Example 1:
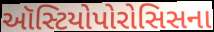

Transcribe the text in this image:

ઑસ્ટિયોપોરોસિસના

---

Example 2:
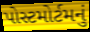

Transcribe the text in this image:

પોસ્ટમોર્ટમનું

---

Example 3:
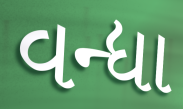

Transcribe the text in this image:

વન્દ્યા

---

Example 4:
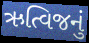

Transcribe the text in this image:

ઋત્વિજનું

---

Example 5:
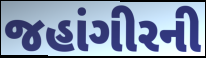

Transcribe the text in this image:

જહાંગીરની